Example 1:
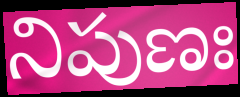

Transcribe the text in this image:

నిపుణః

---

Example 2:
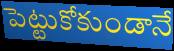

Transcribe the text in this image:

పెట్టుకోకుండానే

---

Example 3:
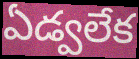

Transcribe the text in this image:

ఏడ్వలేక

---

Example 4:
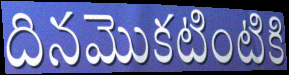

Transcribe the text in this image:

దినమొకటింటికి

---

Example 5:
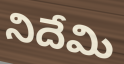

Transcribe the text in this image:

నిదేమి